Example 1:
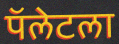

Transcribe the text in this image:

पॅलेटला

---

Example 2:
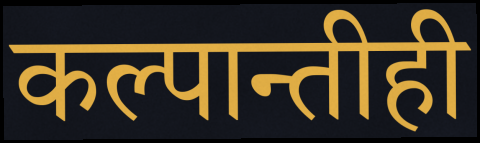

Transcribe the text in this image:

कल्पान्तीही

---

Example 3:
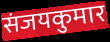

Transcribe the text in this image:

संजयकुमार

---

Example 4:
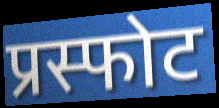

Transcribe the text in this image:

प्रस्फोट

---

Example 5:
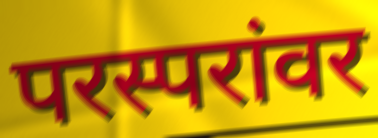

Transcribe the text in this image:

परस्परांवर